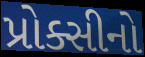
પ્રોક્સીનો